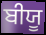
ਬੀਯੂ